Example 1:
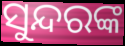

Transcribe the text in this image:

ସୁନ୍ଦରଙ୍କ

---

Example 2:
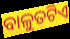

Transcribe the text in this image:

ବାଳୁତଟିଏ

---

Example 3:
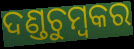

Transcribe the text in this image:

ଦଣ୍ଡଚୁମ୍ବକର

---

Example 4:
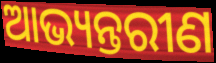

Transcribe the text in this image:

ଆଭ୍ୟନ୍ତରୀଣ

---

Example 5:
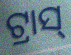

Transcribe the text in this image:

ଟ୍ରାସ୍